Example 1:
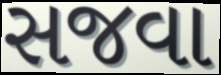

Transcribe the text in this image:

સજવા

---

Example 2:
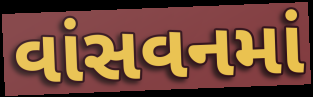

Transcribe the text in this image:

વાંસવનમાં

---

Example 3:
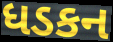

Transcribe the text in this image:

ધડકન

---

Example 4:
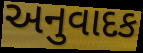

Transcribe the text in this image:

અનુવાદક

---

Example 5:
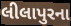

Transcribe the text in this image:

લીલાપુરના